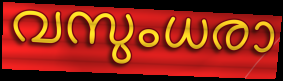
വസുംധരാ